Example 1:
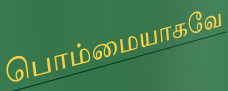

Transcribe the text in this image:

பொம்மையாகவே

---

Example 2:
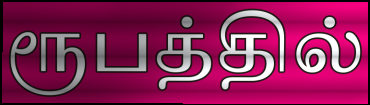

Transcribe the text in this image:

ரூபத்தில்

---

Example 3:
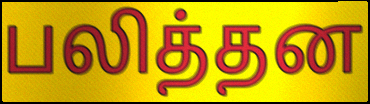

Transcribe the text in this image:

பலித்தன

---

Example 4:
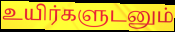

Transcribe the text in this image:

உயிர்களுடனும்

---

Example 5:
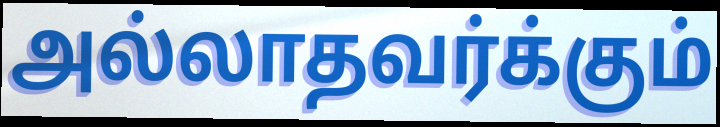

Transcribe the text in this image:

அல்லாதவர்க்கும்